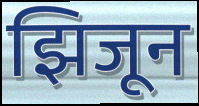
झिजून